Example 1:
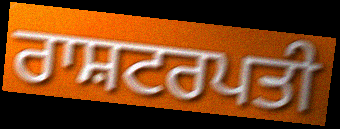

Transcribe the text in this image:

ਰਾਸ਼ਟਰਪਤੀ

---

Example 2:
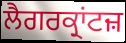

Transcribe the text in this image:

ਲੈਗਰਕ੍ਰਾਂਟਜ਼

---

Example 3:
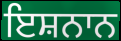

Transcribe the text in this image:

ਇਸ਼ਨਾਨ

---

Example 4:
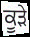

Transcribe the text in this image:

ਕੂੜੇ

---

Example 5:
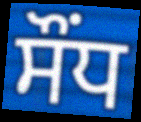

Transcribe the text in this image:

ਸੌਂਧ